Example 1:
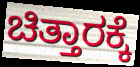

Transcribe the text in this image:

ಚಿತ್ತಾರಕ್ಕೆ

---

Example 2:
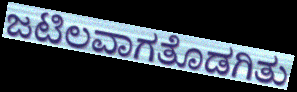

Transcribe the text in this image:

ಜಟಿಲವಾಗತೊಡಗಿತು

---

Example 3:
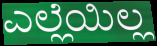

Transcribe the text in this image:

ಎಲ್ಲೆಯಿಲ್ಲ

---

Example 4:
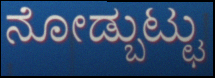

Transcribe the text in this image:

ನೋಡ್ಬುಟ್ಟು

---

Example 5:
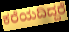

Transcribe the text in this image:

ಕರೆಯದಿದ್ದರೆ